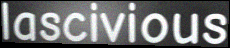
lascivious